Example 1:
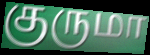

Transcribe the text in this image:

குருமா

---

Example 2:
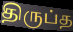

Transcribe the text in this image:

திருப்த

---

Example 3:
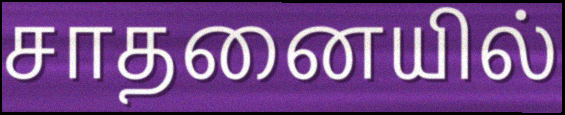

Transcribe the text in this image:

சாதனையில்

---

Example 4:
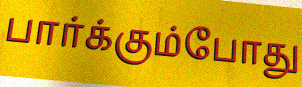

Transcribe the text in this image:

பார்க்கும்போது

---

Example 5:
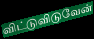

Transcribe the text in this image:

விட்டுவிடுவேன்